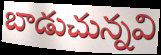
బాడుచున్నవి